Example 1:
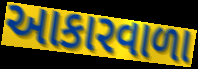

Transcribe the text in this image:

આકારવાળા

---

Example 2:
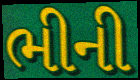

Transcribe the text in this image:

ભીની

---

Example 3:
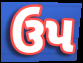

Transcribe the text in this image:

ઉપ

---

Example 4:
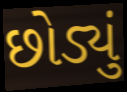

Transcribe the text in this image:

છોડ્યું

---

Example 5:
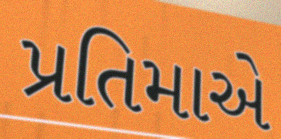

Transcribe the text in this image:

પ્રતિમાએ